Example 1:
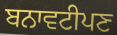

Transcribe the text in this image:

ਬਨਾਵਟੀਪਣ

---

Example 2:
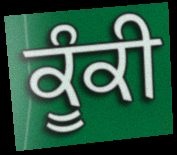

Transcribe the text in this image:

ਕੂੰਕੀ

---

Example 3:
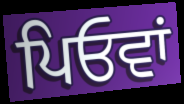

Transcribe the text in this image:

ਪਿਓਵਾਂ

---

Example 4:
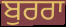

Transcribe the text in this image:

ਬੁਰਰਾ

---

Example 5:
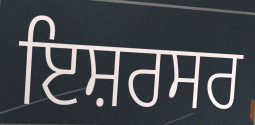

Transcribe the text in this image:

ਇਸ਼ਰਸਰ